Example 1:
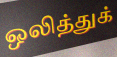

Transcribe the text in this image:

ஒலித்துக்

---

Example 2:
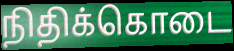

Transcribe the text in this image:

நிதிக்கொடை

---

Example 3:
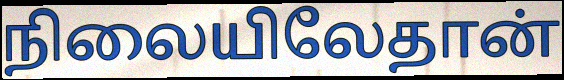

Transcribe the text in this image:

நிலையிலேதான்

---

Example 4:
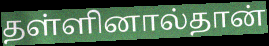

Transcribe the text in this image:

தள்ளினால்தான்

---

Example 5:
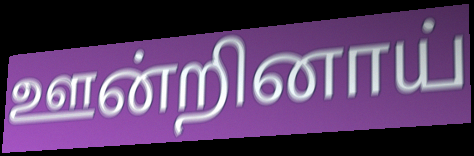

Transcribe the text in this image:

ஊன்றினாய்